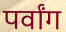
पर्वांग